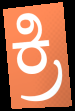
ಕ್ರಿ